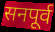
सनपूर्व